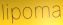
lipoma